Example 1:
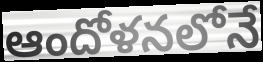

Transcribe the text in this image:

ఆందోళనలోనే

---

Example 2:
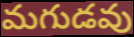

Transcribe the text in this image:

మగుడవు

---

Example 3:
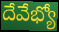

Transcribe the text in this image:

దేవేభ్యో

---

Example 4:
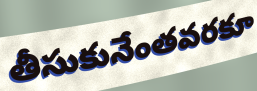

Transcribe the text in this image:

తీసుకునేంతవరకూ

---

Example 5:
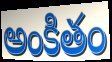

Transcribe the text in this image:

అంకితం